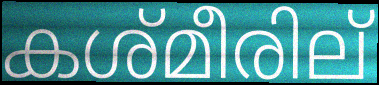
കശ്മീരില്